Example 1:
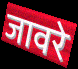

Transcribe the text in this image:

जावरे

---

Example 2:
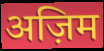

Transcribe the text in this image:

अज़िम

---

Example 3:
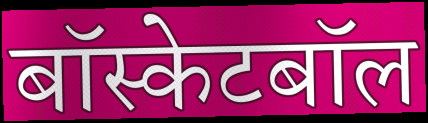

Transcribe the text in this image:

बॉस्केटबॉल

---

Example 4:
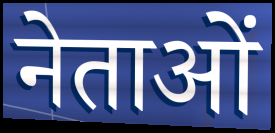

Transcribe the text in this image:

नेताओं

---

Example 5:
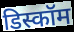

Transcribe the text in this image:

डिस्कॉम